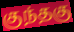
குந்தகு